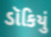
ડૉકિયું